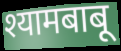
श्यामबाबू